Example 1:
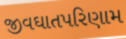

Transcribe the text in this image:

જીવઘાતપરિણામ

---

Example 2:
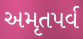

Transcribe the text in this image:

અમૃતપર્વ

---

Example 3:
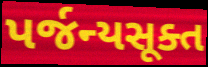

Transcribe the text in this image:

પર્જન્યસૂક્ત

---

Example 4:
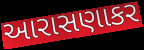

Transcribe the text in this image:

આરાસણાકર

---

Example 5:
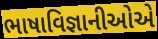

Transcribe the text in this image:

ભાષાવિજ્ઞાનીઓએ